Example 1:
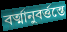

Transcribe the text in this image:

বর্ত্মানুবর্ত্তন্তে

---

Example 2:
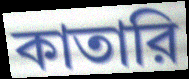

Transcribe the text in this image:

কাতারি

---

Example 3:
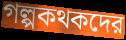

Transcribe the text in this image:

গল্পকথকদের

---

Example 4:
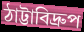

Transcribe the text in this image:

ঠাট্টাবিদ্রুপ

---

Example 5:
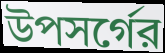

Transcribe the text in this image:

উপসর্গের